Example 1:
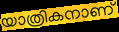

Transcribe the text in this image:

യാത്രികനാണ്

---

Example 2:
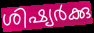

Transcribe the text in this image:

ശിഷ്യർക്കു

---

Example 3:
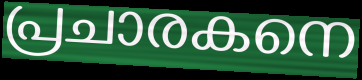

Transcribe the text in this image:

പ്രചാരകനെ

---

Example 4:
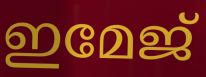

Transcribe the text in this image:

ഇമേജ്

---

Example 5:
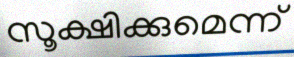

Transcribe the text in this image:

സൂക്ഷിക്കുമെന്ന്